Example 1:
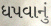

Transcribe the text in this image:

ધપવાનું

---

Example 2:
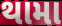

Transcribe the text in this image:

થામા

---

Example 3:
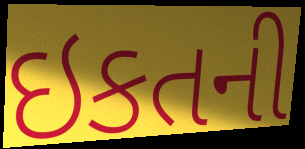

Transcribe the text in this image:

ઇકતની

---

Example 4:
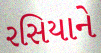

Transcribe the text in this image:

રસિયાને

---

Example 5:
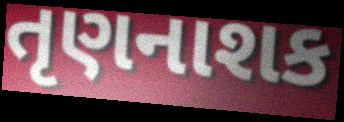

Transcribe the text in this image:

તૃણનાશક